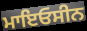
ਮਾਇਓਸੀਨ